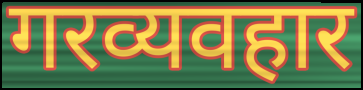
गरव्यवहार